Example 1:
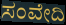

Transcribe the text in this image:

ಸಂವೇದಿ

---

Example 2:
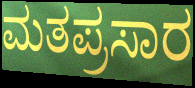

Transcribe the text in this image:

ಮತಪ್ರಸಾರ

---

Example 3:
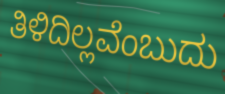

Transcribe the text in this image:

ತಿಳಿದಿಲ್ಲವೆಂಬುದು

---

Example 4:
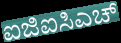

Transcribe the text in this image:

ಐಜಿಐಸಿಎಚ್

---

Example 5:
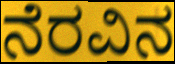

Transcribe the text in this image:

ನೆರವಿನ